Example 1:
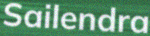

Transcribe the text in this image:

Sailendra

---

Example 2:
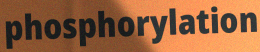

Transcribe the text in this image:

phosphorylation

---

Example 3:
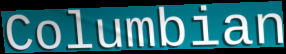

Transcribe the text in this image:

Columbian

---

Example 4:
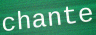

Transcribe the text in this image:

chante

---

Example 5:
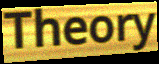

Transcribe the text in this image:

Theory